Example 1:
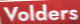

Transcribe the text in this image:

Volders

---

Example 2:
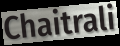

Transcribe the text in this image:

Chaitrali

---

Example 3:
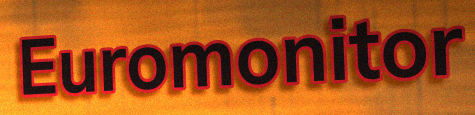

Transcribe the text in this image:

Euromonitor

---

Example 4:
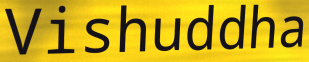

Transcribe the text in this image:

Vishuddha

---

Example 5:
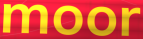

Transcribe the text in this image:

moor